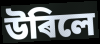
উৰিলে